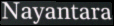
Nayantara